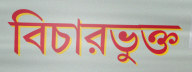
বিচারভুক্ত